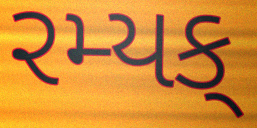
રમ્યક્